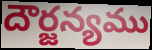
దౌర్జన్యము